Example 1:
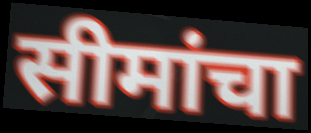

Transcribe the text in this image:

सीमांचा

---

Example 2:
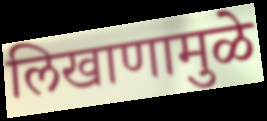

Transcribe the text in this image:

लिखाणामुळे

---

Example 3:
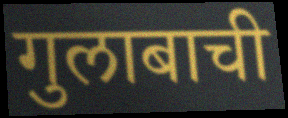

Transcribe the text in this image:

गुलाबाची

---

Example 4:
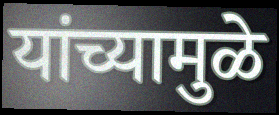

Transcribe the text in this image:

यांच्यामुळे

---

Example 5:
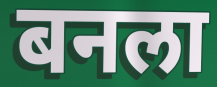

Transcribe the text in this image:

बनला